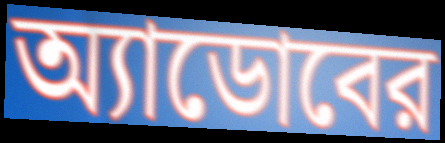
অ্যাডোবের